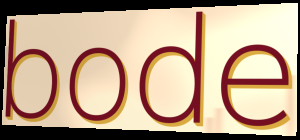
bode